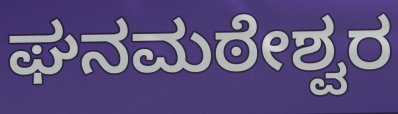
ಘನಮಠೇಶ್ವರ